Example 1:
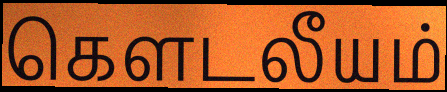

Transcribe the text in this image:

கெளடலீயம்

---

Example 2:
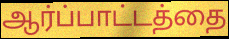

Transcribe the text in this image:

ஆர்ப்பாட்டத்தை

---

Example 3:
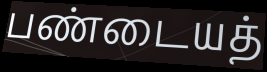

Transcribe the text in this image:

பண்டையத்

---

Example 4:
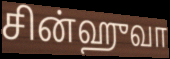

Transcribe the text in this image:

சின்ஹுவா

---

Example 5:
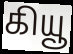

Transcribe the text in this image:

கியூ